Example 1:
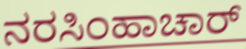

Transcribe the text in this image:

ನರಸಿಂಹಾಚಾರ್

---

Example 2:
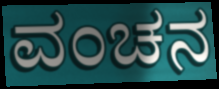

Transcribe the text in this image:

ವಂಚನ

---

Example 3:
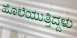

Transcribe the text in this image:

ಹೊಲೆಯುತ್ತಿದ್ದಳು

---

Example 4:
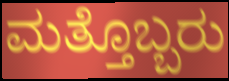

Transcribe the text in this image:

ಮತ್ತೊಬ್ಬರು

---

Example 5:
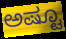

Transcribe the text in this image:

ಅಷ್ಟೂ